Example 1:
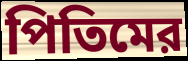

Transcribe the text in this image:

পিতিমের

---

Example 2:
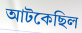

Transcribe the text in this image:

আটকেছিল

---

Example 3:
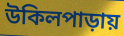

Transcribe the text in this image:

উকিলপাড়ায়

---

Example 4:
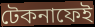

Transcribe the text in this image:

টেকনাফেই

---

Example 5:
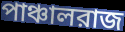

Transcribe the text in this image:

পাঞ্চালরাজ